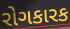
રોગકારક